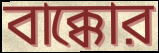
বাক্কোর